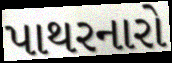
પાથરનારો